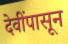
देवींपासून